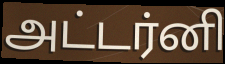
அட்டர்னி